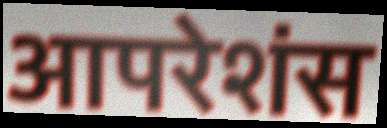
आपरेशंस